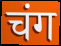
चंग